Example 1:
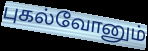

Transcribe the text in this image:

புகல்வோனும்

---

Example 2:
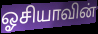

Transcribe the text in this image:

ஓசியாவின்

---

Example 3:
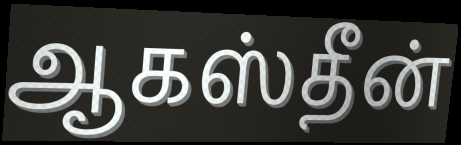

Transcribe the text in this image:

ஆகஸ்தீன்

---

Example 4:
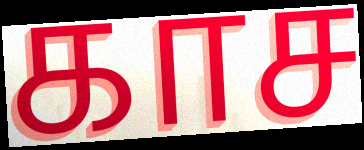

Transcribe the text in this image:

காச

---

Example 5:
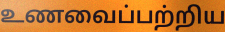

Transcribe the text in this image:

உணவைப்பற்றிய